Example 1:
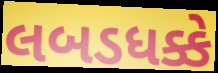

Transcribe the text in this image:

લબડધક્કે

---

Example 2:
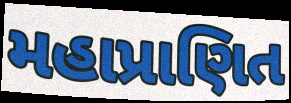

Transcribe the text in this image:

મહાપ્રાણિત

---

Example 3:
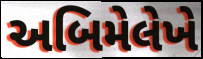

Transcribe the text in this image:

અબિમેલેખે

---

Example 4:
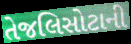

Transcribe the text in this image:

તેજલિસોટાની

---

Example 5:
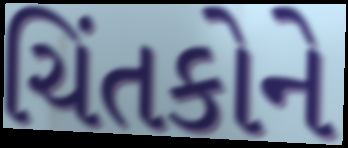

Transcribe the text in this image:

ચિંતકોને